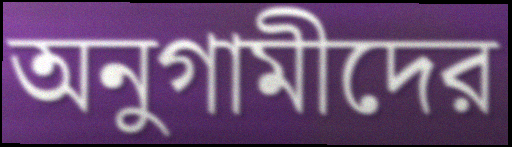
অনুগামীদের